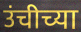
उंचीच्या